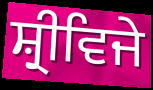
ਸ਼੍ਰੀਵਿਜੇ